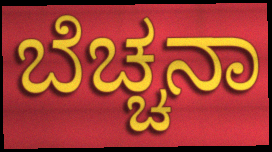
ಬೆಚ್ಚನಾ